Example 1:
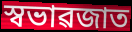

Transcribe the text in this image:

স্বভাৱজাত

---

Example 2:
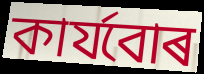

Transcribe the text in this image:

কাৰ্যবোৰ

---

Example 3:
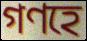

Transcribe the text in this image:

গণহে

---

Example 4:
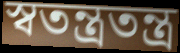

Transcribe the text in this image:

স্বতন্ত্ৰতন্ত্ৰ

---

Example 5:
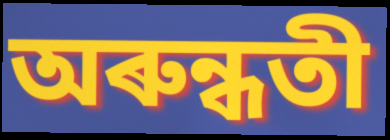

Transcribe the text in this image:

অৰুন্ধতী